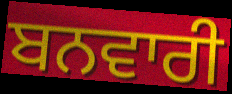
ਬਨਵਾਰੀ